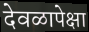
देवळापेक्षा